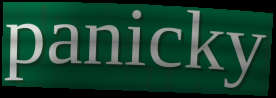
panicky